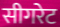
सीगरेट